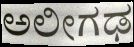
ಅಲೀಗಢ